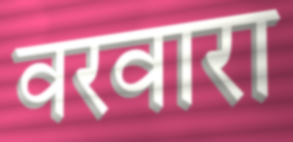
वरवारा